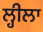
ਲ੍ਹੀਲਾ